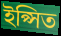
ইপ্সিত